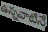
ఉన్నవాటినే